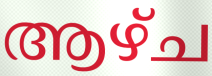
ആഴ്ച